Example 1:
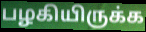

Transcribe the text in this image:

பழகியிருக்க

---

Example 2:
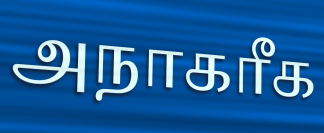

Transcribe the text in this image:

அநாகரீக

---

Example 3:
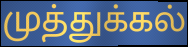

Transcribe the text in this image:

முத்துக்கல்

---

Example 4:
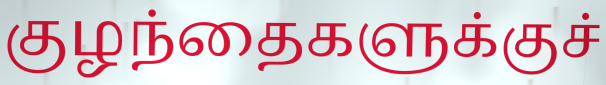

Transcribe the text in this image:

குழந்தைகளுக்குச்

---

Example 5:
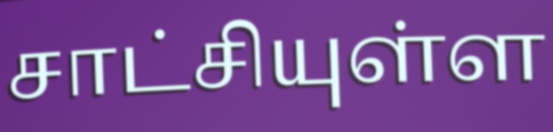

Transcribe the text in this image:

சாட்சியுள்ள